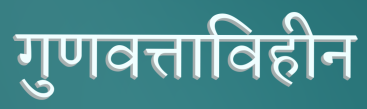
गुणवत्ताविहीन